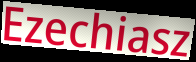
Ezechiasz